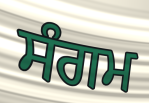
ਸੰਗਮ